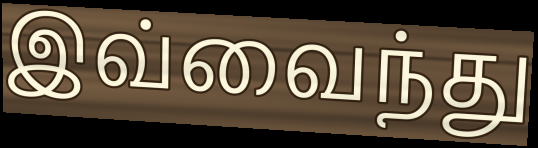
இவ்வைந்து